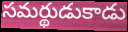
సమర్థుడుకాడు